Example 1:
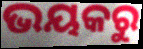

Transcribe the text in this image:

ଭୟକରୁ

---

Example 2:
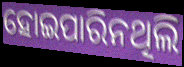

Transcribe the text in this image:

ହୋଇପାରିନଥିଲି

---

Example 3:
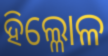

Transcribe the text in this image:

ହିଲ୍ଳୋଳ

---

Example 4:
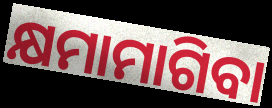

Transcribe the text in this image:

କ୍ଷମାମାଗିବା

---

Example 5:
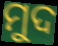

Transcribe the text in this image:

ମୁଦ